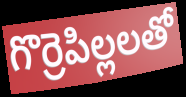
గొర్రెపిల్లలతో